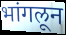
भांगलून